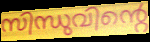
സിന്ധുവിന്റെ